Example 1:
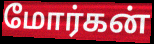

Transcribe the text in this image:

மோர்கன்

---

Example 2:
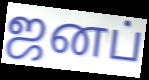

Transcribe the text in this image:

ஜனப்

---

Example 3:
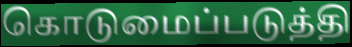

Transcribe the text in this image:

கொடுமைப்படுத்தி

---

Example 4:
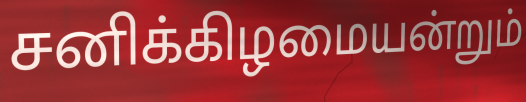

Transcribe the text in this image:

சனிக்கிழமையன்றும்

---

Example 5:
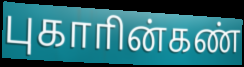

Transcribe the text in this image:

புகாரின்கண்